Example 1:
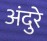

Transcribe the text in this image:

अंदुरे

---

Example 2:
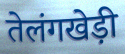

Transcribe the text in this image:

तेलंगखेड़ी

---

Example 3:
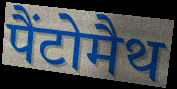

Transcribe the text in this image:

पैंटोमैथ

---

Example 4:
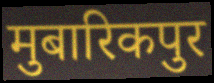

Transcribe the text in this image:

मुबारिकपुर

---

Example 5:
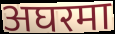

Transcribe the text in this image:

अघरमा